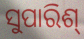
ସୁପାରିଶ୍